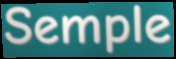
Semple